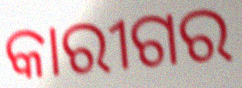
କାରୀଗର